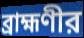
ব্রাহ্মণীর